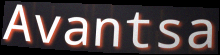
Avantsa